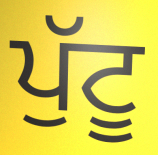
ਪੁੱਟੂ